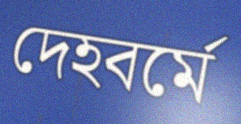
দেহবর্মে